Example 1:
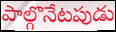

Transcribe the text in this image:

పాల్గొనేటపుడు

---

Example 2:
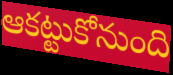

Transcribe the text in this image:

ఆకట్టుకోనుంది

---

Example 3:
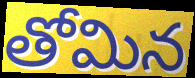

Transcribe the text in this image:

తోమిన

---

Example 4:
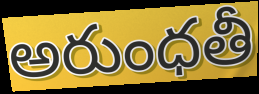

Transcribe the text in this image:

అరుంధతీ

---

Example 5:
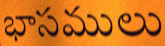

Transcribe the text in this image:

భాసములు